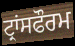
ਟ੍ਰਾਂਸਫੌਰਮ